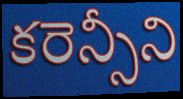
కరెన్సీని